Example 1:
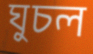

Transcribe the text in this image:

ঘুচল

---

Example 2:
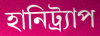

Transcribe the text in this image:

হানিট্র্যাপ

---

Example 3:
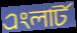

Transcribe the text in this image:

এংলার্ট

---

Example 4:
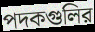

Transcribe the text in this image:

পদকগুলির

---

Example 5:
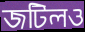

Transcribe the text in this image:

জটিলও